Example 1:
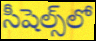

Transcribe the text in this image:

సీషెల్స్‌లో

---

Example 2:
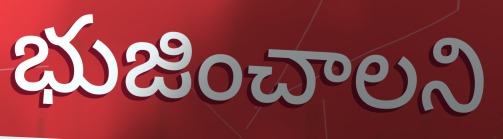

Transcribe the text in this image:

భుజించాలని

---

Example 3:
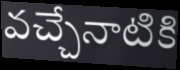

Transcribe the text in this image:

వచ్చేనాటికి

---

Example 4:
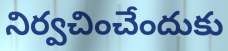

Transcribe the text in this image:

నిర్వచించేందుకు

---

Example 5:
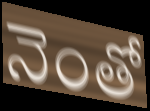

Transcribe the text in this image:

నెంతో